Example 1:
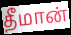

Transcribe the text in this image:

தீமான்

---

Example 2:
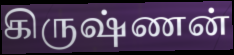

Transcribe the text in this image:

கிருஷ்ணன்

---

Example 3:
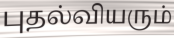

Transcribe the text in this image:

புதல்வியரும்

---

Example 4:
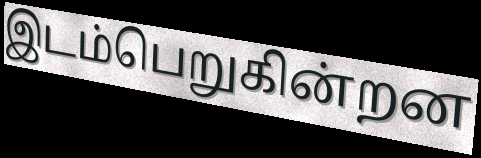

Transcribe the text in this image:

இடம்பெறுகின்றன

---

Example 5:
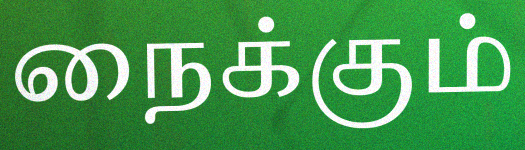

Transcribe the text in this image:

நைக்கும்